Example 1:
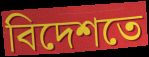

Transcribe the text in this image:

বিদেশতে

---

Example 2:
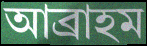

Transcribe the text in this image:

আব্ৰাহম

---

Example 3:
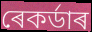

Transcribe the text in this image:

ৰেকৰ্ডাৰ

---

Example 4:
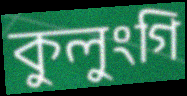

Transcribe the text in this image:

কুলুংগি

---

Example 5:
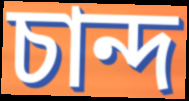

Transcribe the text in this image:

চান্দ